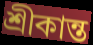
শ্রীকান্ত